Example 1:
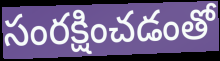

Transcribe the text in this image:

సంరక్షించడంతో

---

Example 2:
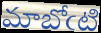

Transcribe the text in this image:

మాబోఁటి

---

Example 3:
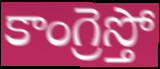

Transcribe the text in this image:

కాంగ్రెస్తో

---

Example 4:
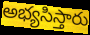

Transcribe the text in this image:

అభ్యసిస్తారు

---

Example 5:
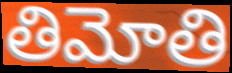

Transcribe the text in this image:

తిమోతి